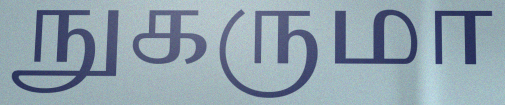
நுகருமா